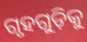
ଗୃହଗୁଡ଼ିକୁ